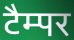
टैम्पर